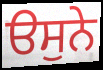
ੳਸੁਨੇ